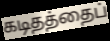
கடிதத்தைப்